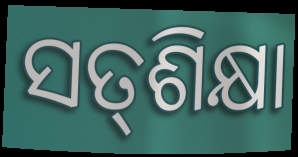
ସତ୍‌ଶିକ୍ଷା